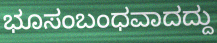
ಭೂಸಂಬಂಧವಾದದ್ದು